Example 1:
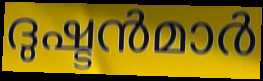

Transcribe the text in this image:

ദുഷ്ടൻമാർ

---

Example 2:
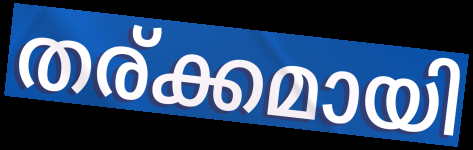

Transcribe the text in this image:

തര്ക്കമായി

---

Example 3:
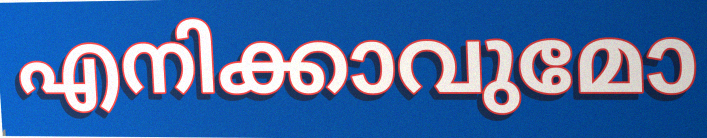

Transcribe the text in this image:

എനിക്കാവുമോ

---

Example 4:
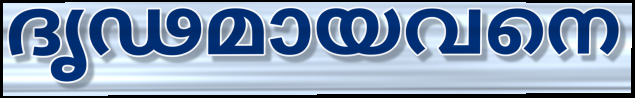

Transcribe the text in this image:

ദൃഢമായവനെ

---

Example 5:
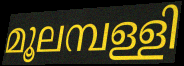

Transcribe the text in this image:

മൂലമ്പള്ളി